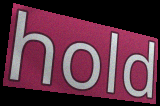
hold